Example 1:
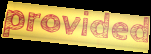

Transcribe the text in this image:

provided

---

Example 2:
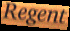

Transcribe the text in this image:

Regent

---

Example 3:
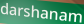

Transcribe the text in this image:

darshanam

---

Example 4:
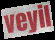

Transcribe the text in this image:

veyil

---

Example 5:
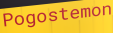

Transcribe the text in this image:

Pogostemon